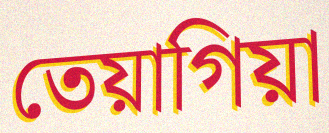
তেয়াগিয়া